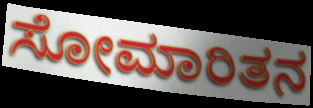
ಸೋಮಾರಿತನ